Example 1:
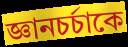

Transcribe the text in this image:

জ্ঞানচর্চাকে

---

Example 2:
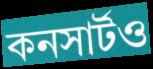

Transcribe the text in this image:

কনসার্টও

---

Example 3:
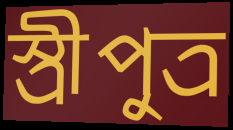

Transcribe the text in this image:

স্ত্রীপুত্র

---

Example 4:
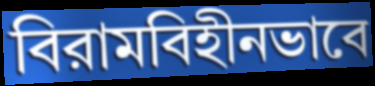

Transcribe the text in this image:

বিরামবিহীনভাবে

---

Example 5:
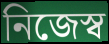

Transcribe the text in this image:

নিজেস্ব